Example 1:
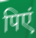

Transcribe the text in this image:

पिएं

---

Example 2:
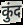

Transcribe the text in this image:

कुंद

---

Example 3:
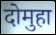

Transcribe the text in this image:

दोमुहा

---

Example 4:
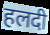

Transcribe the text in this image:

हलदी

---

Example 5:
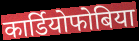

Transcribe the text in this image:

कार्डियोफोबिया